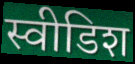
स्वीडिश